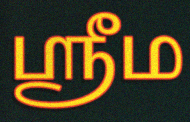
ஶ்ரீம